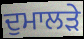
ਦੁਮਾਲੜੇ